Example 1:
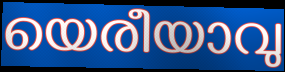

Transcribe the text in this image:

യെരീയാവു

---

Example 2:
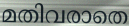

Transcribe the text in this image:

മതിവരാതെ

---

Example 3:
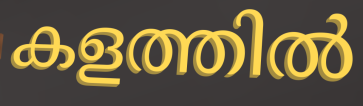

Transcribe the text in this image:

കളത്തിൽ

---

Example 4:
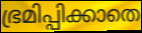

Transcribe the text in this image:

ഭ്രമിപ്പിക്കാതെ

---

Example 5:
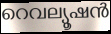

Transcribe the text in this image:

റെവല്യൂഷൻ